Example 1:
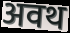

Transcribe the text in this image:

अवथ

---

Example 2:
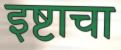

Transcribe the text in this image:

इष्टाचा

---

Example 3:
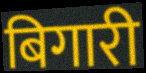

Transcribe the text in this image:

बिगारी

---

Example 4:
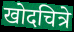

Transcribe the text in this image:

खोदचित्रे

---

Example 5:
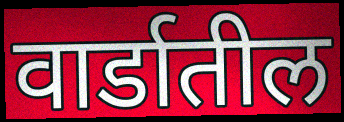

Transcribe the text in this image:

वार्डातील